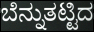
ಬೆನ್ನುತಟ್ಟಿದ